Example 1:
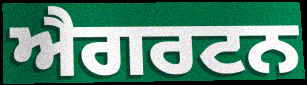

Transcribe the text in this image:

ਐਗਰਟਨ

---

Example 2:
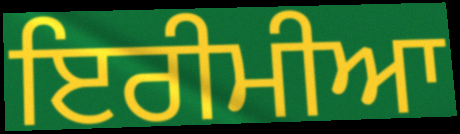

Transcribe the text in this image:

ਇਰੀਮੀਆ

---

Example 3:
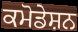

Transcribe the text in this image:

ਕਮੋਡੇਸ਼ਨ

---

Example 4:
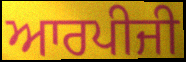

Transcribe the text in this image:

ਆਰਪੀਜੀ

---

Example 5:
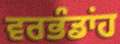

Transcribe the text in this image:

ਵਰਭੰਡਾਂਹ